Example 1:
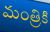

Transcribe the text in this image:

మంత్రికి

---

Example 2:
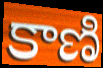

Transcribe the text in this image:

కాణి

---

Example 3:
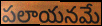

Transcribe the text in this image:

పలాయనమే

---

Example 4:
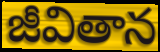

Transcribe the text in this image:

జీవితాన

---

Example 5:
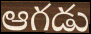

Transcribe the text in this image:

ఆగడు